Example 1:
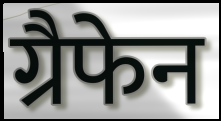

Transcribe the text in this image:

ग्रैफेन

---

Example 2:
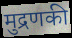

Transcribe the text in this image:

मुद्रणकी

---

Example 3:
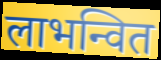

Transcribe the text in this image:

लाभन्वित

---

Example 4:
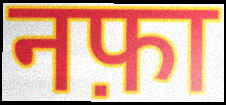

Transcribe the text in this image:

नफ़ा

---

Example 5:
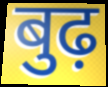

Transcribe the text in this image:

बुढ़